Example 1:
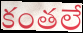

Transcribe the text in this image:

కంతలే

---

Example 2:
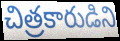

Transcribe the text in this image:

చిత్రకారుడిని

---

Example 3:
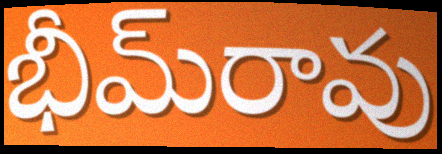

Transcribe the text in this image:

భీమ్‌రావు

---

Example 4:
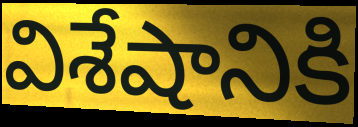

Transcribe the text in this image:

విశేషానికి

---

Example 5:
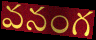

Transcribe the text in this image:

వనంగ